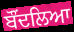
ਬੌਂਦਲਿਆ